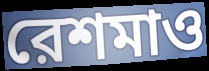
রেশমাও